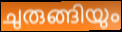
ചുരുങ്ങിയും